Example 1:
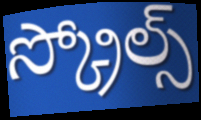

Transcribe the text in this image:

స్క్రోల్స్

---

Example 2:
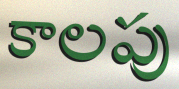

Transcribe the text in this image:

కాలపు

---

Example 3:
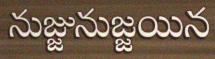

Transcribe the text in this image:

నుజ్జునుజ్జయిన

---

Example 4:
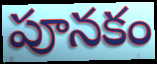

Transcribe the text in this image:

పూనకం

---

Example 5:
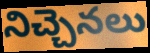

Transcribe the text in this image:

నిచ్చెనలు